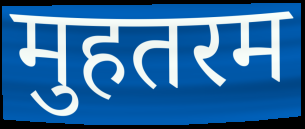
मुहतरम